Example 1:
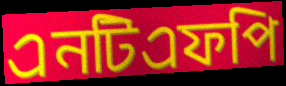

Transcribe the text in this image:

এনটিএফপি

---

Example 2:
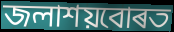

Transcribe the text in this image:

জলাশয়বোৰত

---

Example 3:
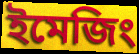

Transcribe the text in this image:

ইমেজিং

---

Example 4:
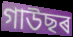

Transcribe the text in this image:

গাউছৰ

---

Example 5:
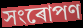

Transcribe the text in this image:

সংৰোপণ